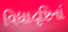
વિદ્યાદૃષ્ટિનાં